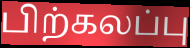
பிற்கலப்பு